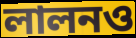
লালনও